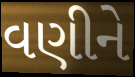
વણીને